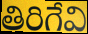
తిరిగేవి